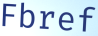
Fbref